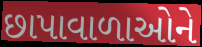
છાપાવાળાઓને